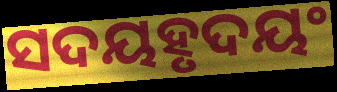
ସଦୟହୃଦୟଂ